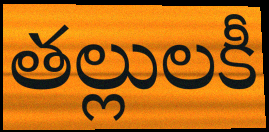
తల్లులకీ